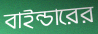
বাইন্ডারের